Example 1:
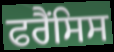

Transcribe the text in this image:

ਫਰੈਂਸਿਸ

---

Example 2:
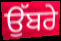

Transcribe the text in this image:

ਉੱਬਰੇ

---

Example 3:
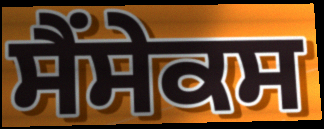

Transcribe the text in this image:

ਸੈਂਸੇਕਸ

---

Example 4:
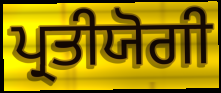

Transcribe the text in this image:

ਪ੍ਰਤੀਯੋਗੀ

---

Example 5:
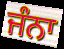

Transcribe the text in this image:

ਜੰਨਾ